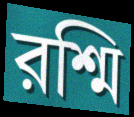
রশ্মি